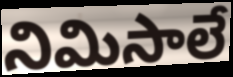
నిమిసాలే